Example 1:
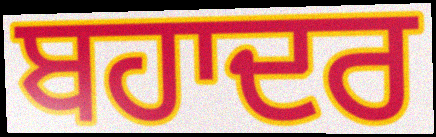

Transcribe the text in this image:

ਬਹਾਦਰ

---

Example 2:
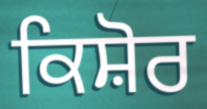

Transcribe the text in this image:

ਕਿਸ਼ੋਰ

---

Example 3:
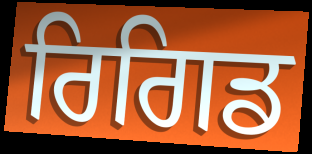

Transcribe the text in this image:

ਰਿਗਿਡ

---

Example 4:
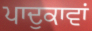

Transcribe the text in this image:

ਪਾਦੁਕਾਵਾਂ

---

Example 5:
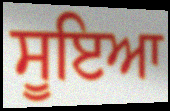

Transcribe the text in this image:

ਸੂਇਆ